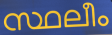
സ്ഥലീം